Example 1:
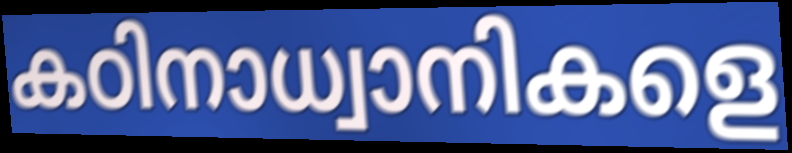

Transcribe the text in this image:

കഠിനാധ്വാനികളെ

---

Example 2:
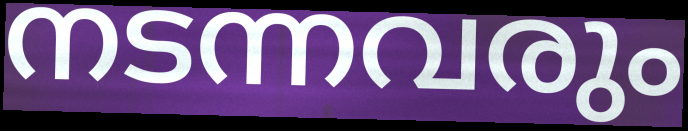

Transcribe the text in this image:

നടന്നവരും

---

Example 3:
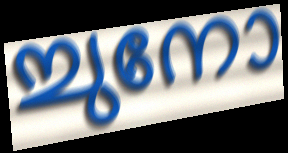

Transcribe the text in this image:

ച്ചുനോ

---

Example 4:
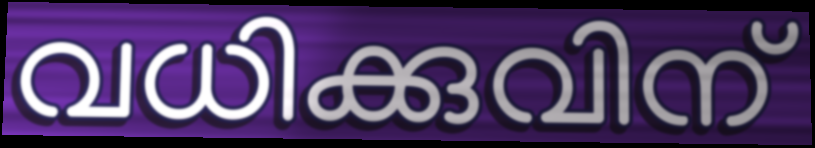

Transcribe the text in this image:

വധിക്കുവിന്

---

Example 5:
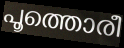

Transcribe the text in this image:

പൂത്തൊരീ